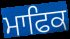
ਮਾਫਿਕ